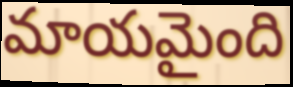
మాయమైంది